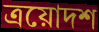
ত্রয়োদশ